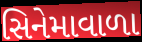
સિનેમાવાળા